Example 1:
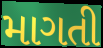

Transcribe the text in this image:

માગતી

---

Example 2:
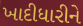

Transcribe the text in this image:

ખાદીધારીને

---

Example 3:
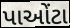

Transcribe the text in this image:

પાઓંટા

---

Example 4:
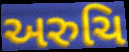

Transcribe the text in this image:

અરુચિ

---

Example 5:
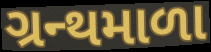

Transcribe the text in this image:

ગ્રન્થમાળા